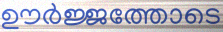
ഊർജ്ജത്തോടെ